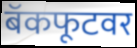
बॅकफूटवर